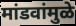
मांडवांमुळे